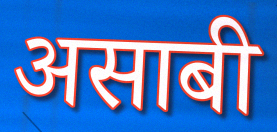
असाबी